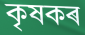
কৃষকৰ